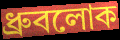
ধ্রুবলোক